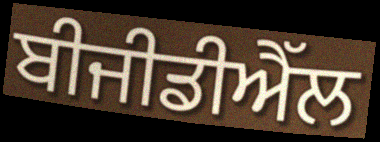
ਬੀਜੀਡੀਐੱਲ